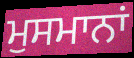
ਮੁਸਮਾਨਾਂ